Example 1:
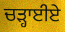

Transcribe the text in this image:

ਚੜ੍ਹਾਈਏ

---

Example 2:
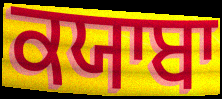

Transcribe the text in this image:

ਕਯਾਬਾ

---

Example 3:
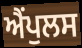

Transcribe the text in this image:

ਐਂਪੁਲਸ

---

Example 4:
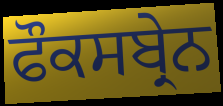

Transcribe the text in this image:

ਫੌਕਸਬ੍ਰੇਨ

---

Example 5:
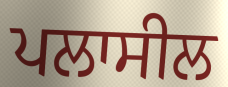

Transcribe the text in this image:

ਪਲਾਸੀਲ